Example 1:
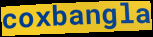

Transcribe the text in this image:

coxbangla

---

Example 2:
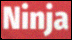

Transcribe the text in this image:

Ninja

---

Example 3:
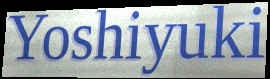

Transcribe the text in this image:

Yoshiyuki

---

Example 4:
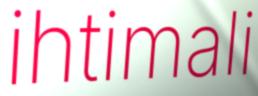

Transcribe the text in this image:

ihtimali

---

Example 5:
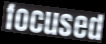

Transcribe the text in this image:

focused